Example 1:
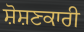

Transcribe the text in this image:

ਸ਼ੋਸ਼ਣਕਾਰੀ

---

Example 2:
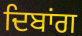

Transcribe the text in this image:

ਦਿਬਾਂਗ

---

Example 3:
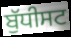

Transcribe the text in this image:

ਬੁੱਧੀਸਟ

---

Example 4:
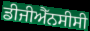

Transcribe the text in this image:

ਡੀਜੀਐੱਨਸੀਸੀ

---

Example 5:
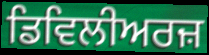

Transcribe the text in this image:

ਡਿਵਿਲੀਅਰਜ਼